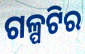
ଗଳ୍ପଟିର